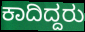
ಕಾದಿದ್ದರು